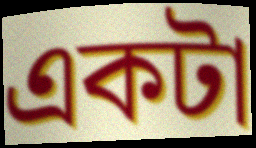
একটা